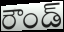
రౌండ్